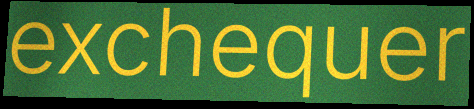
exchequer